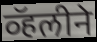
व्हॅलीने